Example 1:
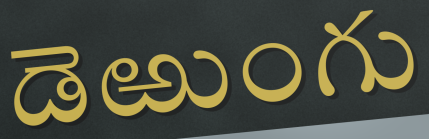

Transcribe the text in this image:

డెఱుంగు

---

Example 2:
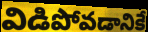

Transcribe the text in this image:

విడిపోవడానికే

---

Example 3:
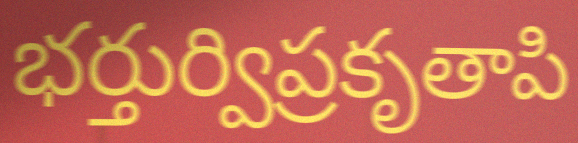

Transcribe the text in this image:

భర్తుర్విప్రకృతాపి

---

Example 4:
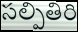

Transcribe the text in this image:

సల్పితిరి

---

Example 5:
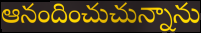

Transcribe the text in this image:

ఆనందించుచున్నాను